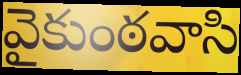
వైకుంఠవాసి